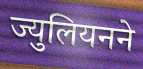
ज्युलियनने